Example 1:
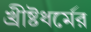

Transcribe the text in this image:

খ্রীষ্টধর্মের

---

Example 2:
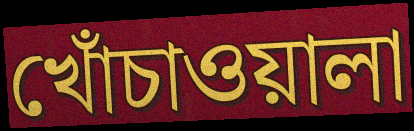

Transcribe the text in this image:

খোঁচাওয়ালা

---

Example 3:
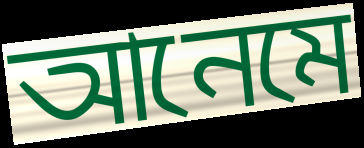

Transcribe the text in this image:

আনেমে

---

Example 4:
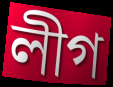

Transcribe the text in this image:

লীগ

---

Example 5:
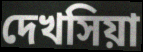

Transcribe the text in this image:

দেখসিয়া